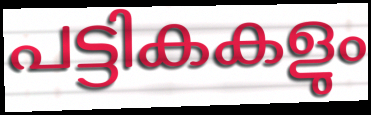
പട്ടികകളും